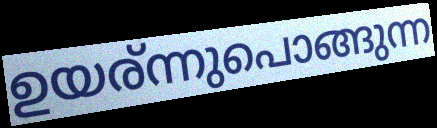
ഉയര്ന്നുപൊങ്ങുന്ന